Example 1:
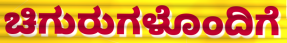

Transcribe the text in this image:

ಚಿಗುರುಗಳೊಂದಿಗೆ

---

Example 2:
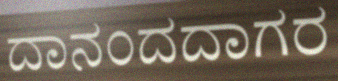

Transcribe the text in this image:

ದಾನಂದದಾಗರ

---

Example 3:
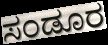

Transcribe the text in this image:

ಸಂಡೂರ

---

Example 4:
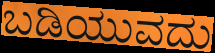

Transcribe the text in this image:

ಬಡಿಯುವದು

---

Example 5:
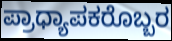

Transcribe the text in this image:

ಪ್ರಾಧ್ಯಾಪಕರೊಬ್ಬರ